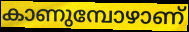
കാണുമ്പോഴാണ്